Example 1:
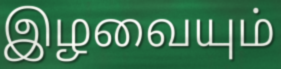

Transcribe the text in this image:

இழவையும்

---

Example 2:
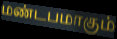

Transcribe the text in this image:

மண்டபமாகும்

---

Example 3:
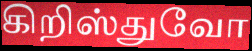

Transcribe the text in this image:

கிறிஸ்துவோ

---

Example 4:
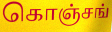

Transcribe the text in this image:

கொஞ்சங்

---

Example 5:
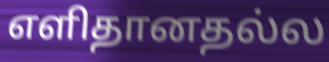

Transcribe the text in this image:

எளிதானதல்ல